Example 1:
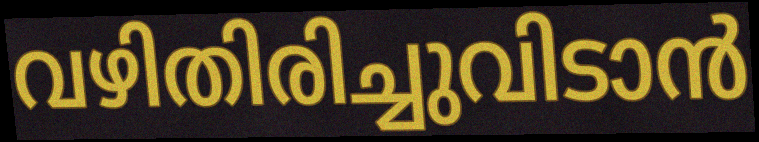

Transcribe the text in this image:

വഴിതിരിച്ചുവിടാൻ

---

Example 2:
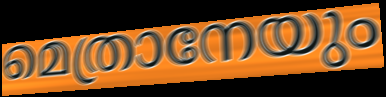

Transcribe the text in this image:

മെത്രാനേയും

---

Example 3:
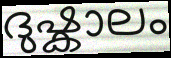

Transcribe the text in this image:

ദുഷ്കാലം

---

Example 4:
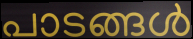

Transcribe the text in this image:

പാടങ്ങൾ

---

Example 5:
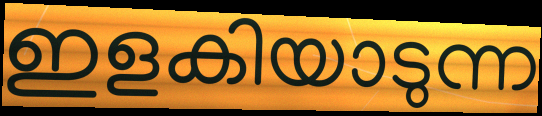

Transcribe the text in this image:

ഇളകിയാടുന്ന